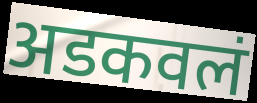
अडकवलं